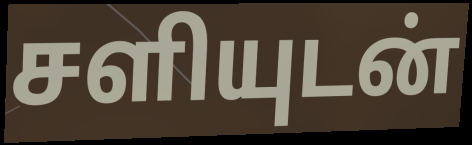
சளியுடன்